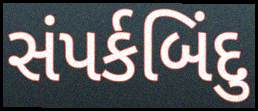
સંપર્કબિંદુ